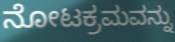
ನೋಟಕ್ರಮವನ್ನು